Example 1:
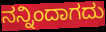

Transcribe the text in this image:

ನನ್ನಿಂದಾಗದು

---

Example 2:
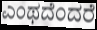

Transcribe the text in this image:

ಎಂಥದೆಂದರೆ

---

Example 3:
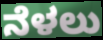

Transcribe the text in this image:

ನೆಳಲು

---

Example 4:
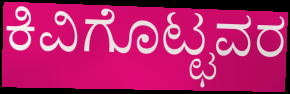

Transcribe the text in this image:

ಕಿವಿಗೊಟ್ಟವರ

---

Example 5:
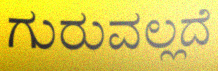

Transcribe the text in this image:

ಗುರುವಲ್ಲದೆ